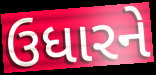
ઉધારને